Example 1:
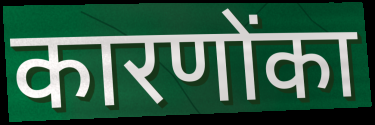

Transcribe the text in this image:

कारणोंका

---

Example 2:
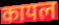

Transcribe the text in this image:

कायल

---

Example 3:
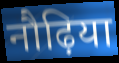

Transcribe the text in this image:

नौढ़िया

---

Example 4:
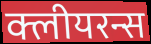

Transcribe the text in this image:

क्लीयरन्स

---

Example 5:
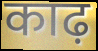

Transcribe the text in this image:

काढ़